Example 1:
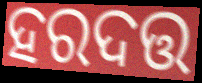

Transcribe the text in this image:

ହରଦତ୍ତ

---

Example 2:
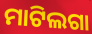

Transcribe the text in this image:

ମାଟିଲଗା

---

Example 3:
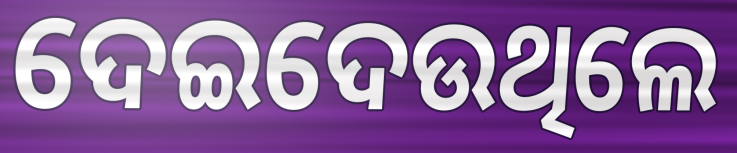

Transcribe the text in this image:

ଦେଇଦେଉଥିଲେ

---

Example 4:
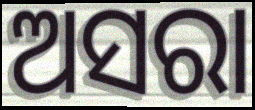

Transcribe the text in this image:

ଅସରା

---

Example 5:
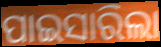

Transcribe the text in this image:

ପାଇସାରିଲା